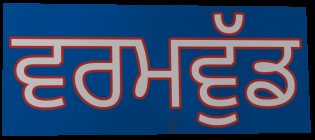
ਵਰਮਵੁੱਡ